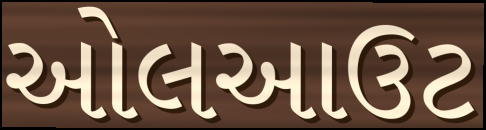
ઓલઆઉટ